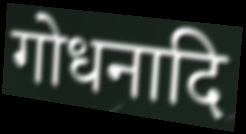
गोधनादि